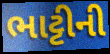
ભાટ્ટીની